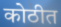
कोठीत